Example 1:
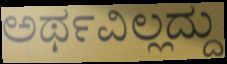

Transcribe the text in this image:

ಅರ್ಥವಿಲ್ಲದ್ದು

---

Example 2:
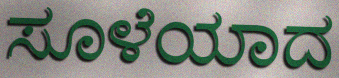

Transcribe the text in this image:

ಸೂಳೆಯಾದ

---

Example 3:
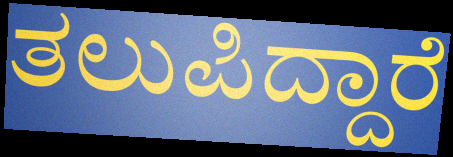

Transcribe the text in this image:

ತಲುಪಿದ್ದಾರೆ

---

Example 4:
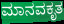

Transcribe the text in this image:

ಮಾನವಕೃತ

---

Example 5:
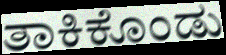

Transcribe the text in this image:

ತಾಕಿಕೊಂಡು